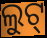
ଲୁଟ୍